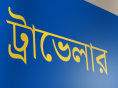
ট্রাভেলার